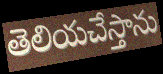
తెలియచేస్తాను